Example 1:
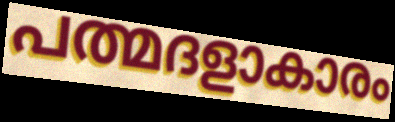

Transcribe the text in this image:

പത്മദളാകാരം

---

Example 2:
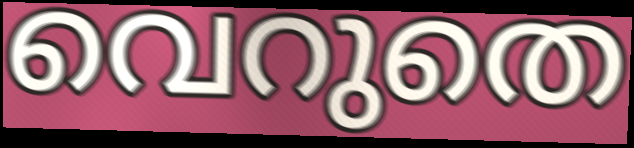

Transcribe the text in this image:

വെറുതെ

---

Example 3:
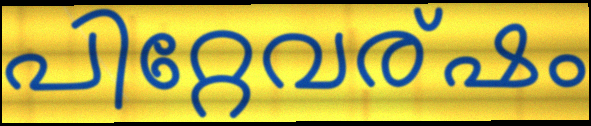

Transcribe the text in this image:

പിറ്റേവര്ഷം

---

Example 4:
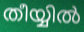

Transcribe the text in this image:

തീയ്യിൽ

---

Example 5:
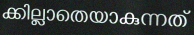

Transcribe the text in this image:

ക്കില്ലാതെയാകുന്നത്